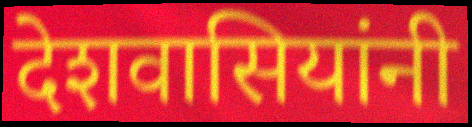
देशवासियांनी